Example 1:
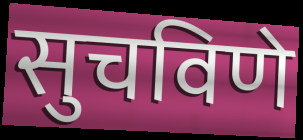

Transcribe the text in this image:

सुचविणे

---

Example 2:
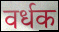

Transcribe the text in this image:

वर्धक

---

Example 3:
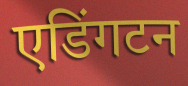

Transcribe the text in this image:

एडिंगटन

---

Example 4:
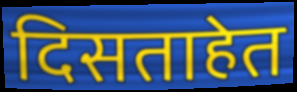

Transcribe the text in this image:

दिसताहेत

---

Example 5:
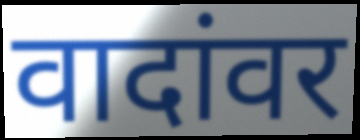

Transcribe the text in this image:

वादांवर